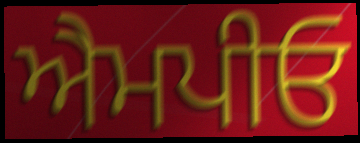
ਐਮਪੀਓ